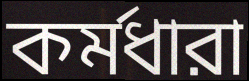
কর্মধারা